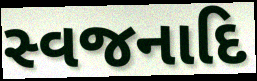
સ્વજનાદિ